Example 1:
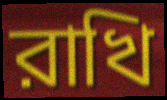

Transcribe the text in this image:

রাখি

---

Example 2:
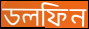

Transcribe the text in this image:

ডলফিন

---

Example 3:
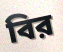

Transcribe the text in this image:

বির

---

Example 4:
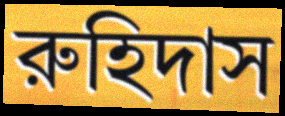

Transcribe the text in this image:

রুহিদাস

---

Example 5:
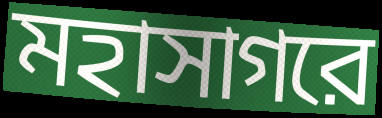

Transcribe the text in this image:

মহাসাগরে